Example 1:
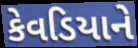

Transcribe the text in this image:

કેવડિયાને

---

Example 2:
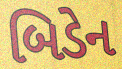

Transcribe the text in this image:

બિડેન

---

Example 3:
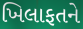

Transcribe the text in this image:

ખિલાફતને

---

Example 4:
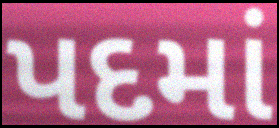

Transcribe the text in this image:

પદમાં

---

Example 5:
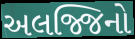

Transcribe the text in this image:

અલજ્જિનો